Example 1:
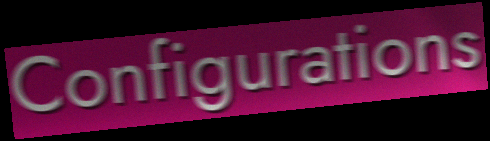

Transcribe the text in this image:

Configurations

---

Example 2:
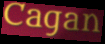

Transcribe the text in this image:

Cagan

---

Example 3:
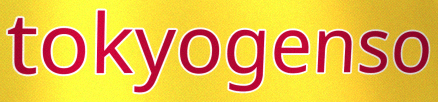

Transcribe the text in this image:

tokyogenso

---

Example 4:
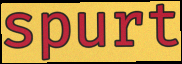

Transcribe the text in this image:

spurt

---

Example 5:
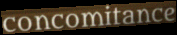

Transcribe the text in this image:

concomitance